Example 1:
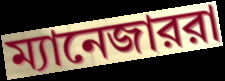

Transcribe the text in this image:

ম্যানেজাররা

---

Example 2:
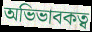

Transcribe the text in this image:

অভিভাবকত্ব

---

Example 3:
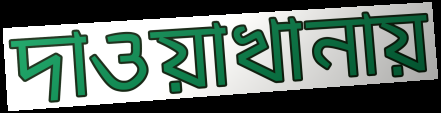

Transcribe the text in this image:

দাওয়াখানায়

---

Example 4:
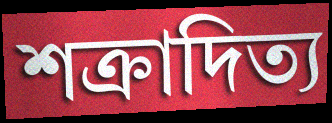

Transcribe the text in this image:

শক্রাদিত্য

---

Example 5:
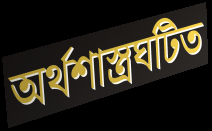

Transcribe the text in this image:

অর্থশাস্ত্রঘটিত